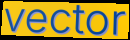
vector